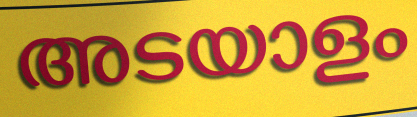
അടയാളം